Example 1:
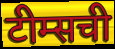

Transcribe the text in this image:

टीम्सची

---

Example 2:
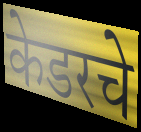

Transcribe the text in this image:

केडरचे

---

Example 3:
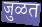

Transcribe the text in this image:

जुळत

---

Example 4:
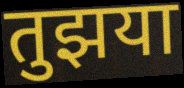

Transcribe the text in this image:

तुझया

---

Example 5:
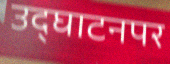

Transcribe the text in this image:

उद्घाटनपर